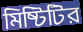
মিষ্টিটির